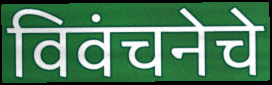
विवंचनेचे